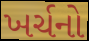
ખર્ચનો